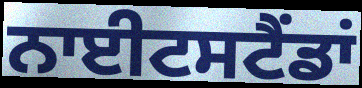
ਨਾਈਟਸਟੈਂਡਾਂ